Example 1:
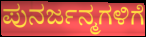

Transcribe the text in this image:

ಪುನರ್ಜನ್ಮಗಳಿಗೆ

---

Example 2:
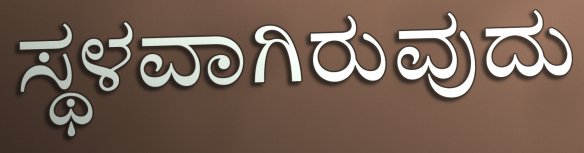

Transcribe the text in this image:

ಸ್ಥಳವಾಗಿರುವುದು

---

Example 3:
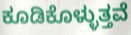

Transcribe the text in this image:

ಕೂಡಿಕೊಳ್ಳುತ್ತವೆ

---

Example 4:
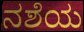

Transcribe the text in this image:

ನಶೆಯ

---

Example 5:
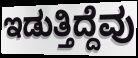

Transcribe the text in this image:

ಇಡುತ್ತಿದ್ದೆವು